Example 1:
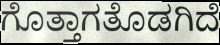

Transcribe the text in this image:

ಗೊತ್ತಾಗತೊಡಗಿದೆ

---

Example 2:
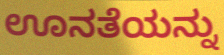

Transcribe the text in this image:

ಊನತೆಯನ್ನು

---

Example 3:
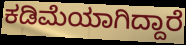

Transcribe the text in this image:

ಕಡಿಮೆಯಾಗಿದ್ದಾರೆ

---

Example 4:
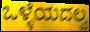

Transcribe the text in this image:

ಒಳ್ಳೆಯದಲ್ವ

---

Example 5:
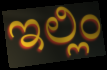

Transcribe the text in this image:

ಇಲ್ಲಿಂ